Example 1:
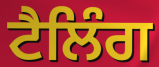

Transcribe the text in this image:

ਟੈਲਿੰਗ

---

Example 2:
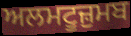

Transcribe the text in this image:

ਅਲਮਟੂਜ਼ੁਮਬ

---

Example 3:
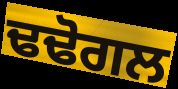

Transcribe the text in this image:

ਢਢੋਗਲ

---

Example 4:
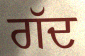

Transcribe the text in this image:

ਗੱਦ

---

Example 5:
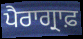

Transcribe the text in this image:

ਪੈਰਾਗ੍ਰਾਫ਼